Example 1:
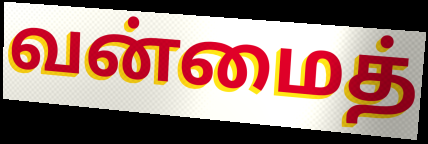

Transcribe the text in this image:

வன்மைத்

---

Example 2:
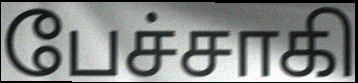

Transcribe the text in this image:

பேச்சாகி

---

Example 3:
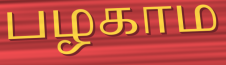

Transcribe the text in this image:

பழகாம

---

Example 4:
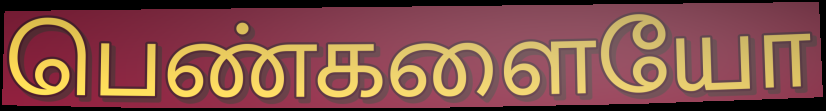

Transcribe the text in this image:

பெண்களையோ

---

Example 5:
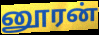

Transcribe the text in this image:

னூரன்